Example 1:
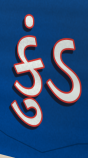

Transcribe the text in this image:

કુંડ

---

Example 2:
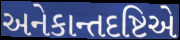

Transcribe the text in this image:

અનેકાન્તદષ્ટિએ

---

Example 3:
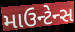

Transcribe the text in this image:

માઉન્ટેન્સ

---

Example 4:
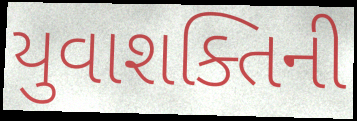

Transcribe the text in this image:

યુવાશક્તિની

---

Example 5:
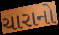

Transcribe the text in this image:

ચારાનો